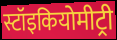
स्टॉइकियोमीट्री